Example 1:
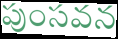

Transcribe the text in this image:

పుంసవన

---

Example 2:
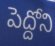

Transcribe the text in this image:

పెద్దోని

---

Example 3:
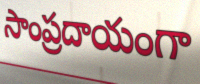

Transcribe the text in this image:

సాంప్రదాయంగా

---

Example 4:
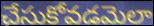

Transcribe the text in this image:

చేసుకోవడమెలా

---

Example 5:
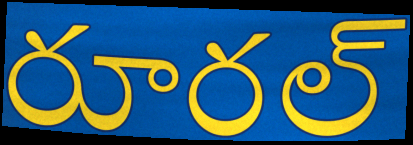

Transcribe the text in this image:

రూరల్